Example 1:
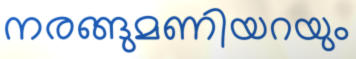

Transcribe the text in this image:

നരങ്ങുമണിയറയും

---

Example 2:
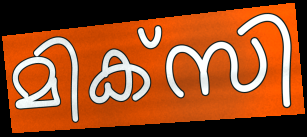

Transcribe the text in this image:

മിക്‌സി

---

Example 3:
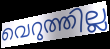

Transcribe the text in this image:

വെറുത്തില്ല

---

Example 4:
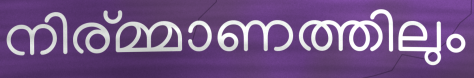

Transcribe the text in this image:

നിര്മ്മാണത്തിലും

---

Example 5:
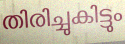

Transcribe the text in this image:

തിരിച്ചുകിട്ടും